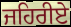
ਜਹਿਰੀਏ